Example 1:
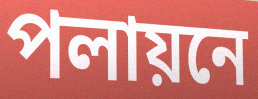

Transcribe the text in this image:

পলায়নে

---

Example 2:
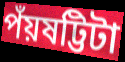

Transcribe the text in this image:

পঁয়ষট্টিটা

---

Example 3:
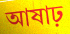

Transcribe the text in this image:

আষাঢ়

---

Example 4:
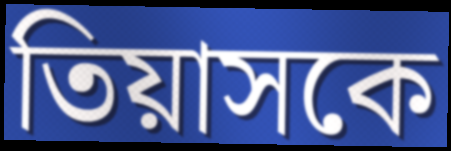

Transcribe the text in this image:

তিয়াসকে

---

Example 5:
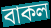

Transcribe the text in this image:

বাকল